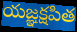
యజ్ఞక్షపిత